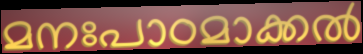
മനഃപാഠമാക്കൽ